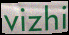
vizhi